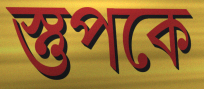
স্তুপকে